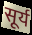
सूर्य